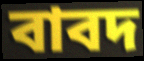
বাবদ